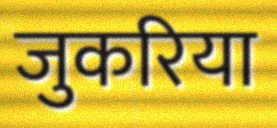
जुकरिया